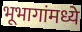
भूभागांमध्ये